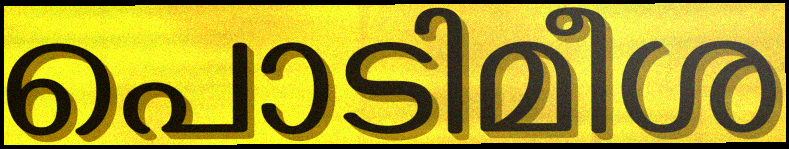
പൊടിമീശ